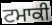
ਟਮਾਕੀ